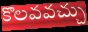
కొలవవచ్చు